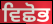
ਵਿਛੋਭ